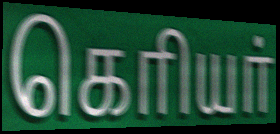
கெரியர்